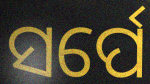
ସର୍ପେ